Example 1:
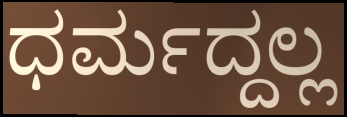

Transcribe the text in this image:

ಧರ್ಮದ್ದಲ್ಲ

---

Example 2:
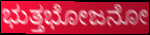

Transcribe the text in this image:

ಭುತ್ತಭೋಜನೋ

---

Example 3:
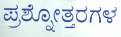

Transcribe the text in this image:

ಪ್ರಶ್ನೋತ್ತರಗಳ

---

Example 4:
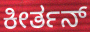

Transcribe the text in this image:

ಕೀರ್ತನ್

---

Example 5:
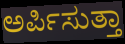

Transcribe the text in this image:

ಅರ್ಪಿಸುತ್ತಾ